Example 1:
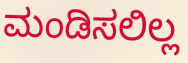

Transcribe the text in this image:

ಮಂಡಿಸಲಿಲ್ಲ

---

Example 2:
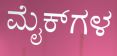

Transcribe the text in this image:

ಮೈಕ್‌ಗಳ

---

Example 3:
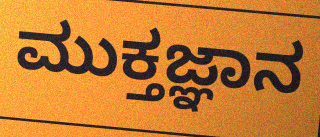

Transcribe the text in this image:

ಮುಕ್ತಜ್ಞಾನ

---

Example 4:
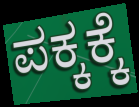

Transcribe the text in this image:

ಪಕ್ಕಕ್ಕೆ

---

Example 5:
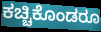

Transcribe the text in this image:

ಕಚ್ಚಿಕೊಂಡರೂ